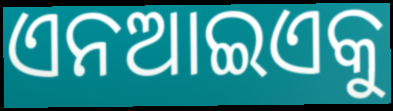
ଏନଆଇଏକୁ